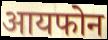
आयफोन